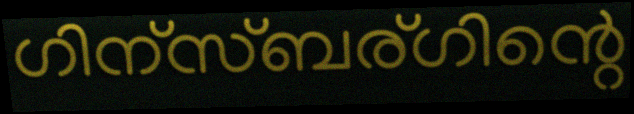
ഗിന്സ്ബര്ഗിന്റെ